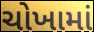
ચોખામાં